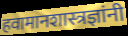
हवामानशास्त्रज्ञांनी